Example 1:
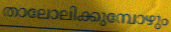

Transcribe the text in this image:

താലോലിക്കുമ്പോഴും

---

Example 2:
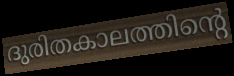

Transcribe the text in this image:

ദുരിതകാലത്തിന്റെ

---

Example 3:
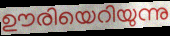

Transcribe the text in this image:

ഊരിയെറിയുന്നു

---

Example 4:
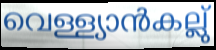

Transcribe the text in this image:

വെള്ള്യാൻകല്ലു്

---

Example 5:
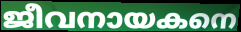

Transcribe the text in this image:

ജീവനായകനെ